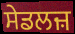
ਸੇਡਲਜ਼